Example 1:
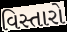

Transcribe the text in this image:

વિસ્તારો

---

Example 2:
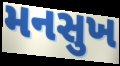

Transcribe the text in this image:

મનસુખ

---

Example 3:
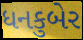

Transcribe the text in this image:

ધનકુબેર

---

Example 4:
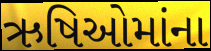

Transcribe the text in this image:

ઋષિઓમાંના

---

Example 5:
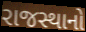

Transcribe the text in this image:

રાજસ્થાનો